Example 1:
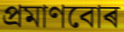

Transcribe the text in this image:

প্ৰমাণবোৰ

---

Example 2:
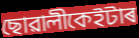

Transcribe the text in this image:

ছোৱালীকেইটাৰ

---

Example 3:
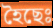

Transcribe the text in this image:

হৈছেঃ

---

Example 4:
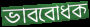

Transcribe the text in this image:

ভাববোধক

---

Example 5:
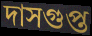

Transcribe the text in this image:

দাসগুপ্ত